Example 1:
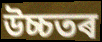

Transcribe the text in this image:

উচ্চতৰ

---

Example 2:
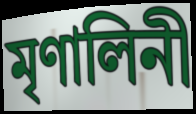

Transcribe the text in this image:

মৃণালিনী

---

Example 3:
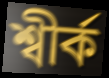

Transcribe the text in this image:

শ্বীৰ্ক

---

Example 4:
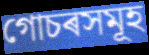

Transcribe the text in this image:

গোচৰসমূহ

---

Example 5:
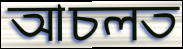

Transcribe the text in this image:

আচলত